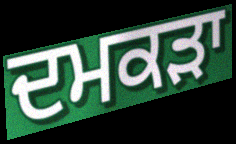
ਦਮਕੜਾ